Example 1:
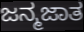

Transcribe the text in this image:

ಜನ್ಮಜಾತ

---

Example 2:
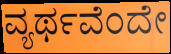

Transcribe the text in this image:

ವ್ಯರ್ಥವೆಂದೇ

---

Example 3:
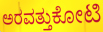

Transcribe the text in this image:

ಅರವತ್ತುಕೋಟಿ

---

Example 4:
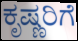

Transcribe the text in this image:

ಕೃಷ್ಣರಿಗೆ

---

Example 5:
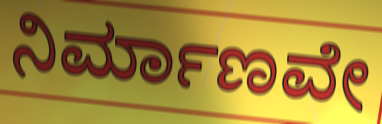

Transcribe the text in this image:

ನಿರ್ಮಾಣವೇ